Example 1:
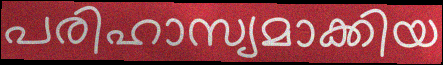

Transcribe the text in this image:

പരിഹാസ്യമാക്കിയ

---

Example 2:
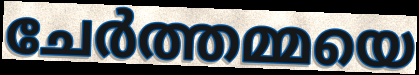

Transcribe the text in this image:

ചേർത്തമ്മയെ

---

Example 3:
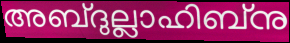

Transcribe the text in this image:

അബ്ദുല്ലാഹിബ്നു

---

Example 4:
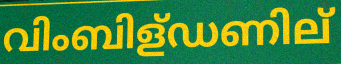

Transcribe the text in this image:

വിംബിള്ഡണില്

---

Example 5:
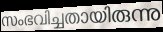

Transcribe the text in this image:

സംഭവിച്ചതായിരുന്നു